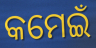
କମେଇଁ